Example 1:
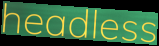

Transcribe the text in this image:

headless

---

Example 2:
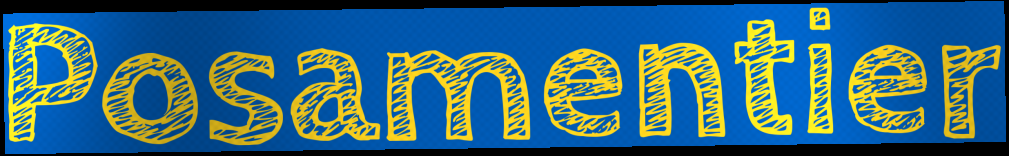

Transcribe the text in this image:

Posamentier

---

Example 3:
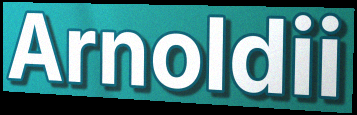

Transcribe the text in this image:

Arnoldii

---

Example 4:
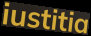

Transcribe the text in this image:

iustitia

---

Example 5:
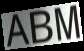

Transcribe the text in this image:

ABM